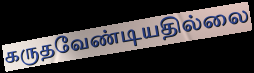
கருதவேண்டியதில்லை